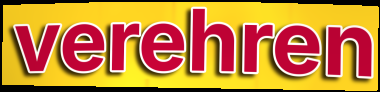
verehren